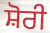
ਸ਼ੋਰੀ